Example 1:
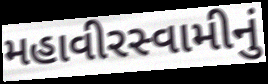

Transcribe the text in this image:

મહાવીરસ્વામીનું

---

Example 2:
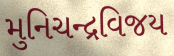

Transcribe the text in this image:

મુનિચન્દ્રવિજય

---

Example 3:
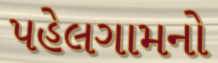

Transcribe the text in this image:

પહેલગામનો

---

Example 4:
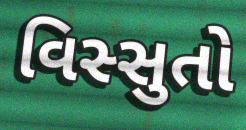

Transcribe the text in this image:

વિસ્સુતો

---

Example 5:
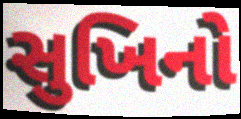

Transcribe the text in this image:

સુખિનો